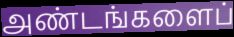
அண்டங்களைப்